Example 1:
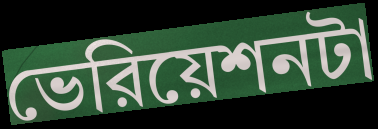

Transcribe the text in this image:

ভেরিয়েশনটা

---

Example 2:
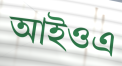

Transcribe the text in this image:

আইওএ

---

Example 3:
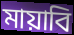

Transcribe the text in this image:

মায়াবি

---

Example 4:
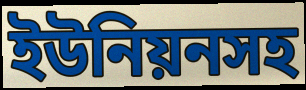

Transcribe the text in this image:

ইউনিয়নসহ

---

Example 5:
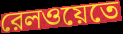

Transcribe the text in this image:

রেলওয়েতে